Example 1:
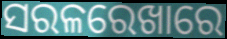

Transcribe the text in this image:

ସରଳରେଖାରେ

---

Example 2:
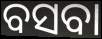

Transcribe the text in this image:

ବସବା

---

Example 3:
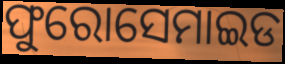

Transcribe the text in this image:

ଫୁରୋସେମାଇଡ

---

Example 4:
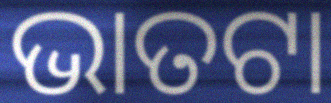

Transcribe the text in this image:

ଭାତଟା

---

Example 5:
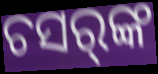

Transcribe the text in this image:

ଚସର୍‌ଙ୍କ